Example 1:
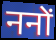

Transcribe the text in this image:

ननों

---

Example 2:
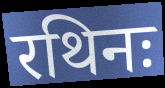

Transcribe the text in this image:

रथिनः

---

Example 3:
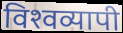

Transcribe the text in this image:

विश्वव्यापी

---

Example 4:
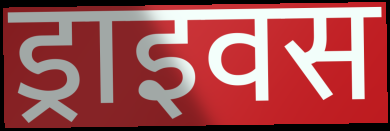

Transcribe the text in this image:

ड्राइवस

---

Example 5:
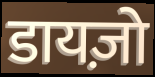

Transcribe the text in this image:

डायज़ो